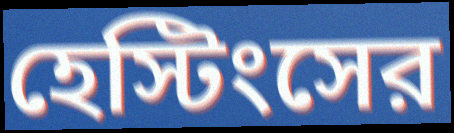
হেস্টিংসের